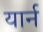
यार्न